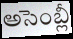
అసెంబ్లీ